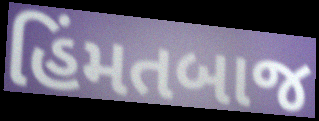
હિંમતબાજ